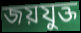
জয়যুক্ত